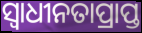
ସ୍ବାଧୀନତାପ୍ରାପ୍ତ